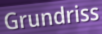
Grundriss